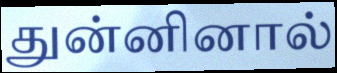
துன்னினால்